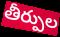
తీర్పుల